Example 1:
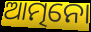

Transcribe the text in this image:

ଆତ୍ମନୋ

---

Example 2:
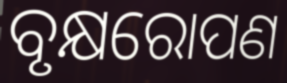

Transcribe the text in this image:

ବୃକ୍ଷରୋପଣ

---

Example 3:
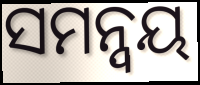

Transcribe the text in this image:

ସମନ୍ନ୍ୱୟ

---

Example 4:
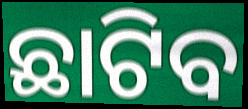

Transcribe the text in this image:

ଛାଟିବ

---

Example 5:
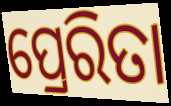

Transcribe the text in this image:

ପ୍ରେରିତା